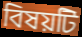
বিষয়টি